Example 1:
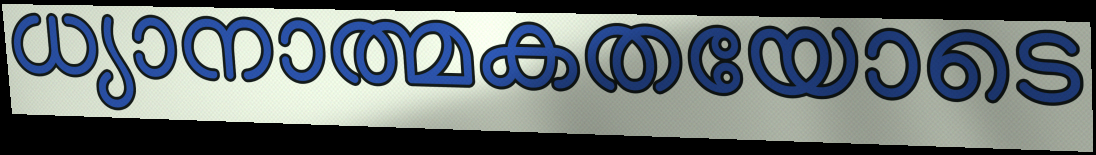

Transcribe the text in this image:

ധ്യാനാത്മകതയോടെ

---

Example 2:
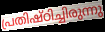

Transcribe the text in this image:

പ്രതിഷ്ഠിച്ചിരുന്നു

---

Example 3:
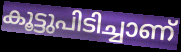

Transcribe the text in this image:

കൂട്ടുപിടിച്ചാണ്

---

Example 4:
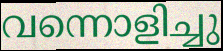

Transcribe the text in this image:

വന്നൊളിച്ചു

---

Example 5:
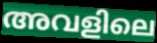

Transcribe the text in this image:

അവളിലെ